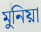
মুনিয়া